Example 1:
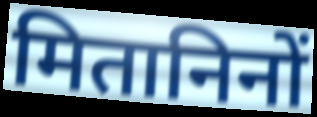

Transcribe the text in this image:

मितानिनों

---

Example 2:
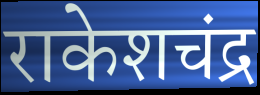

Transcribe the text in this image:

राकेशचंद्र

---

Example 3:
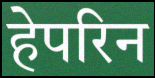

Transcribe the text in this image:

हेपरिन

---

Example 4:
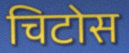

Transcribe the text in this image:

चिटोस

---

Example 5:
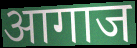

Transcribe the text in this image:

आगाज